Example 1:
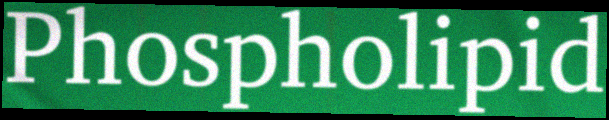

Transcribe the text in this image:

Phospholipid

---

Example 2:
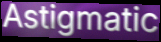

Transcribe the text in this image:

Astigmatic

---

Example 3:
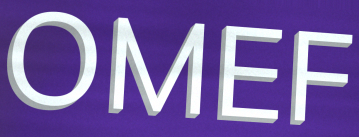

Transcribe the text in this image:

OMEF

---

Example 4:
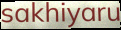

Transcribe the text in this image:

sakhiyaru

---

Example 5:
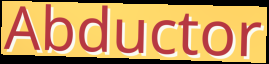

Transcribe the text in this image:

Abductor